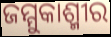
ଜମ୍ମୁକାଶ୍ମୀର